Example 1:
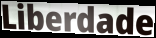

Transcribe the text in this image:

Liberdade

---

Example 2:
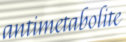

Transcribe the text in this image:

antimetabolite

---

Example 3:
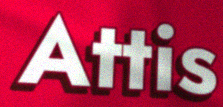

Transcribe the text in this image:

Attis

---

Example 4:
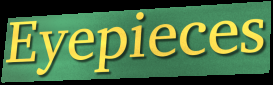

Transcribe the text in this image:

Eyepieces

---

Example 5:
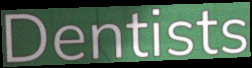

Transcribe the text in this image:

Dentists